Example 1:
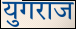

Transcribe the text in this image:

युगराज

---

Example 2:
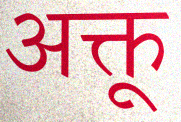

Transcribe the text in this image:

अक्तू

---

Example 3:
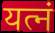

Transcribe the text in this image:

यत्नं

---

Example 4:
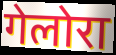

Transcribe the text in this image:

गेलोरा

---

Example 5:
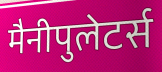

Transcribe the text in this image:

मैनीपुलेटर्स